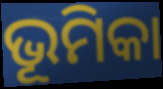
ଭୂମିକା